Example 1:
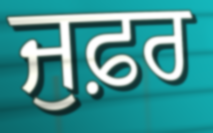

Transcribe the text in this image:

ਜੁਫ਼ਰ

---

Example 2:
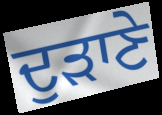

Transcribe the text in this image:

ਦੁੜਾਣੇ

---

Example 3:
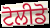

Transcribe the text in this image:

ਟੋਲੀਡੋ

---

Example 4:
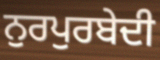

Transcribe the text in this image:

ਨੁਰਪੁਰਬੇਦੀ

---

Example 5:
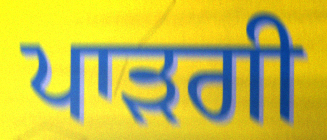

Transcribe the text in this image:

ਪਾੜਗੀ